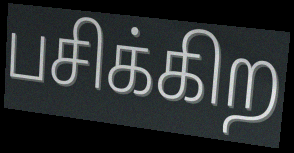
பசிக்கிற